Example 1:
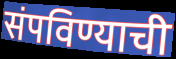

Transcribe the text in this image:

संपविण्याची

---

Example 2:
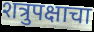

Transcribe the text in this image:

शत्रुपक्षाचा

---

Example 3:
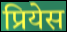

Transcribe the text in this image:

प्रियेस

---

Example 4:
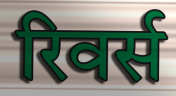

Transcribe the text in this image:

रिवर्स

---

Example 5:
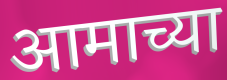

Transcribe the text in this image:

आमाच्या